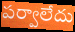
పర్వాలేదు